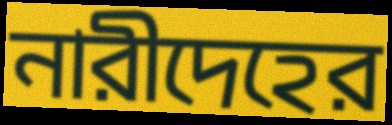
নারীদেহের